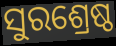
ସୁରଶ୍ରେଷ୍ଠ